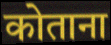
कोताना